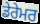
ਡੇਰੇਮਰ